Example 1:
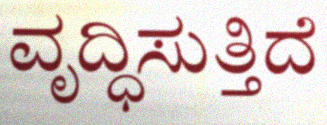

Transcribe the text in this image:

ವೃದ್ಧಿಸುತ್ತಿದೆ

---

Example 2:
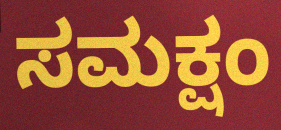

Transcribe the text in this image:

ಸಮಕ್ಷಂ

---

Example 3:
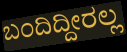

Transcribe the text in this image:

ಬಂದಿದ್ದೀರಲ್ಲ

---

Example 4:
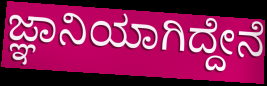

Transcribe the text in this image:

ಜ್ಞಾನಿಯಾಗಿದ್ದೇನೆ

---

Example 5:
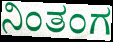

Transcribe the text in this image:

ನಿಂತಂಗ